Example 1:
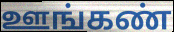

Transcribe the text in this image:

ஊங்கண்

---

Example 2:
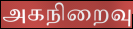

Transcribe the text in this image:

அகநிறைவு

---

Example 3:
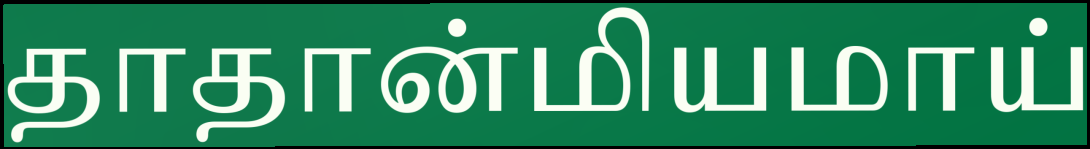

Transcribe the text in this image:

தாதான்மியமாய்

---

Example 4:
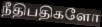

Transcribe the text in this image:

நீதிபதிகளோ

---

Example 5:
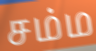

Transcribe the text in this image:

சம்ம